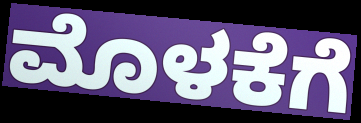
ಮೊಳಕೆಗೆ